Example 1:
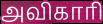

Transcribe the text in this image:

அவிகாரி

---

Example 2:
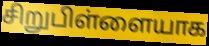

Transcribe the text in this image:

சிறுபிள்ளையாக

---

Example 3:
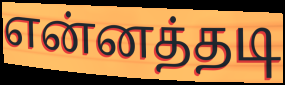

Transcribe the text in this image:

என்னத்தடி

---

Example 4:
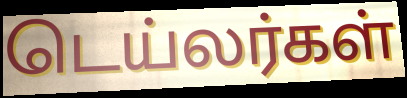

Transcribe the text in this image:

டெய்லர்கள்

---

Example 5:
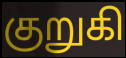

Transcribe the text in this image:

குறுகி